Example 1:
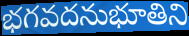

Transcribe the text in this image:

భగవదనుభూతిని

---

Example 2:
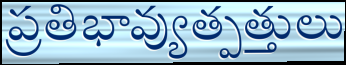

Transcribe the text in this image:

ప్రతిభావ్యుత్పత్తులు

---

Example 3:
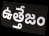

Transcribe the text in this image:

ఉత్తేజం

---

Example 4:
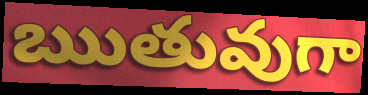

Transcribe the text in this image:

ఋతువుగా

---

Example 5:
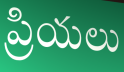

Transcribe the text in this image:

ప్రియలు